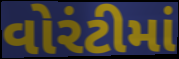
વોરંટીમાં